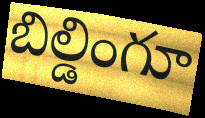
బిల్డింగూ